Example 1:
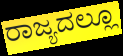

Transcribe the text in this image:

ರಾಜ್ಯದಲ್ಲೂ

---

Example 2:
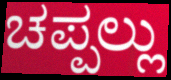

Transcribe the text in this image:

ಚಪ್ಪಲ್ಲು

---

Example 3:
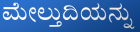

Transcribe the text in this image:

ಮೇಲ್ತುದಿಯನ್ನು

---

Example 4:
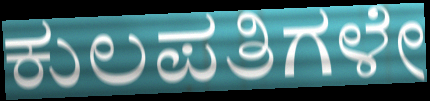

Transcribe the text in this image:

ಕುಲಪತಿಗಳೇ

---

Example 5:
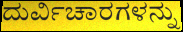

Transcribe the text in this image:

ದುರ್ವಿಚಾರಗಳನ್ನು